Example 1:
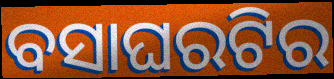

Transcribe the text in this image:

ବସାଘରଟିର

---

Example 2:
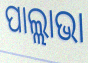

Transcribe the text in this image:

ପାଲ୍ଲାଭା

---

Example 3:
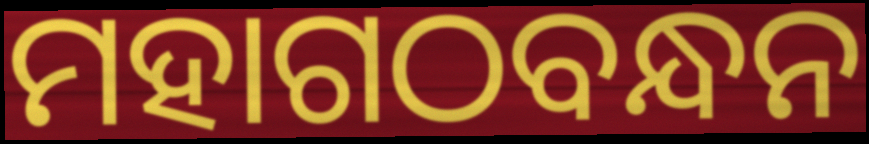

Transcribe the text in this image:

ମହାଗଠବନ୍ଧନ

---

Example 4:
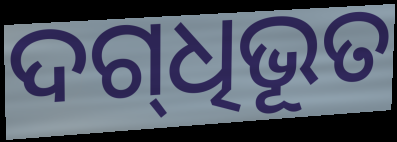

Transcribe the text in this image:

ଦଗ୍‍ଧିଭୂତ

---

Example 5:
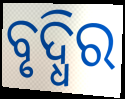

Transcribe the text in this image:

ବୃଦ୍ଧିର